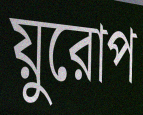
য়ুরোপ